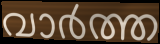
വാർത്ത